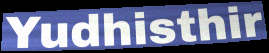
Yudhisthir